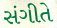
સંગીતે